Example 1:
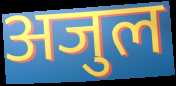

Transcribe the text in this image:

अजुल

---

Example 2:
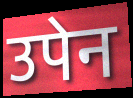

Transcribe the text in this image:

उपेन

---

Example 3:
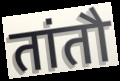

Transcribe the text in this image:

तांतौ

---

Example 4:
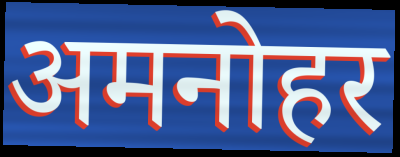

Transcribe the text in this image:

अमनोहर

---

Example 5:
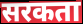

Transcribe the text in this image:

सरकता